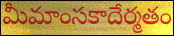
మీమాంసకాదేర్మతం